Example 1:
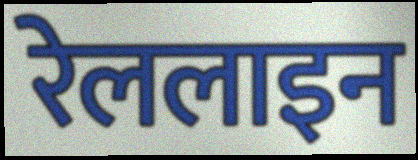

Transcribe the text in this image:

रेललाइन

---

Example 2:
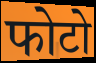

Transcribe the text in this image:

फोटो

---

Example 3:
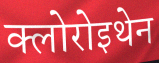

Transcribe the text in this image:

क्लोरोइथेन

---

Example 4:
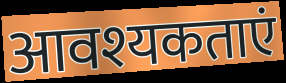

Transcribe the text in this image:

आवश्यकताएं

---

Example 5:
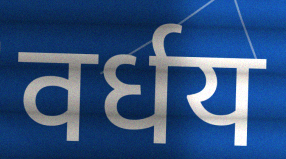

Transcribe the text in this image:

वर्धय